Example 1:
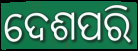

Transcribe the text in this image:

ଦେଶପରି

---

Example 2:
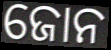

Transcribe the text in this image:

ଜୋନ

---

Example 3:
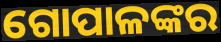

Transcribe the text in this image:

ଗୋପାଳଙ୍କର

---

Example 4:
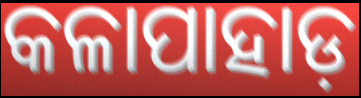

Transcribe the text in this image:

କଳାପାହାଡ଼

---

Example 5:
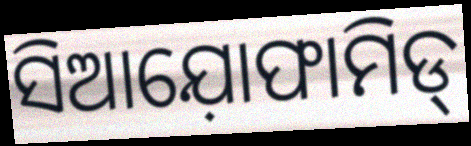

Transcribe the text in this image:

ସିଆଯ଼ୋଫାମିଡ୍